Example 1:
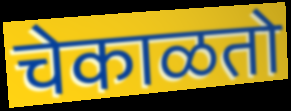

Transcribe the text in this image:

चेकाळतो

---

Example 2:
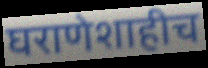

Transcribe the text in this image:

घराणेशाहीच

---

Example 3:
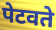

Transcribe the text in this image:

पेटवते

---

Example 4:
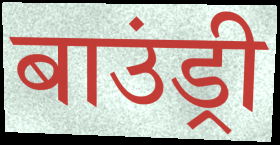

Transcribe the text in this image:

बाउंड्री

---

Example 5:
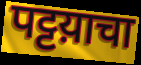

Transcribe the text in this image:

पट्टय़ाचा